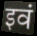
इवं